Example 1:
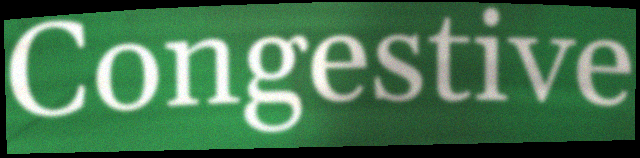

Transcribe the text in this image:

Congestive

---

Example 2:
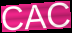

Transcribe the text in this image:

CAC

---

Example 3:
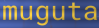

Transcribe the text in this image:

muguta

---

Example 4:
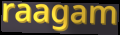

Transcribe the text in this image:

raagam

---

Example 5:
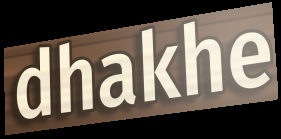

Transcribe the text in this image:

dhakhe